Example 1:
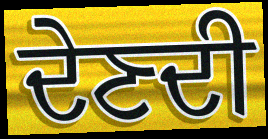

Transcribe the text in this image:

ਦੇਣਦੀ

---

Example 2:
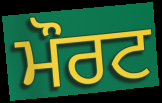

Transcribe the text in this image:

ਮੌਰਟ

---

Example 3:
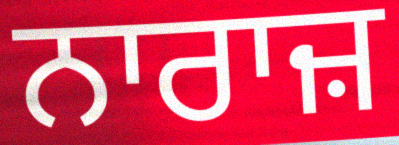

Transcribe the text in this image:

ਨਾਰਾਜ਼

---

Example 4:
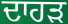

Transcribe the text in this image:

ਦਾਹੜ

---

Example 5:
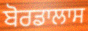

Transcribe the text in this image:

ਬੋਰਡਾਲਾਸ